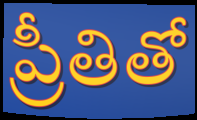
ప్రీతితో